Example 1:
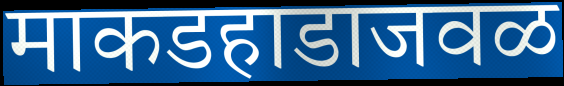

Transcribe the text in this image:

माकडहाडाजवळ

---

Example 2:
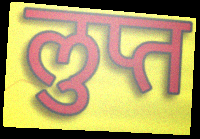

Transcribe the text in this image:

लुप्त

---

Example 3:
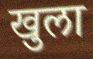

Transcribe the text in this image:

खुला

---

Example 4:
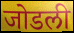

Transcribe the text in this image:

जोडली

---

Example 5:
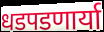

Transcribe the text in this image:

धडपडणार्या